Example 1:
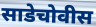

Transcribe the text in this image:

साडेचोवीस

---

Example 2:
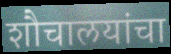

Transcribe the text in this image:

शौचालयांचा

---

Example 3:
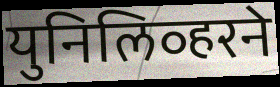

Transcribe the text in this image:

युनिलिव्हरने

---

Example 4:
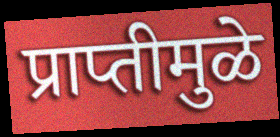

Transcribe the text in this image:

प्राप्तीमुळे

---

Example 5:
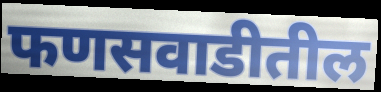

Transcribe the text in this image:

फणसवाडीतील